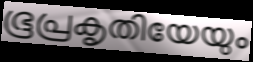
ഭൂപ്രകൃതിയേയും